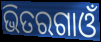
ଭିତରଗାଓଁ